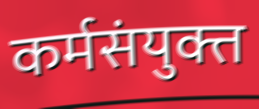
कर्मसंयुक्त